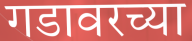
गडावरच्या